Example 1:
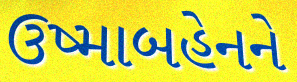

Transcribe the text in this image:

ઉષ્માબહેનને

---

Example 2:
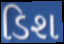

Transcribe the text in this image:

ડિશ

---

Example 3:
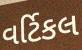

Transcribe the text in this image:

વર્ટિકલ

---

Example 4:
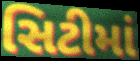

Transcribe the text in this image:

સિટીમાં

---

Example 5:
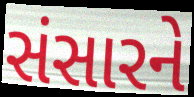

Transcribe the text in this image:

સંસારને